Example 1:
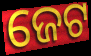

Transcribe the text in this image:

ଜେଟ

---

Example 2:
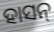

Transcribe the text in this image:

ହାସନ୍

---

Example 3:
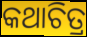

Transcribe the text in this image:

କଥାଚିତ୍ର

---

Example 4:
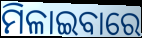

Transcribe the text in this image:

ମିଳାଇବାରେ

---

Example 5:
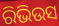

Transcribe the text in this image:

ରିଭିଉସ